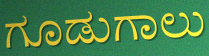
ಗೂಡುಗಾಲು